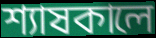
শ্যাষকালে